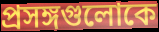
প্রসঙ্গগুলোকে